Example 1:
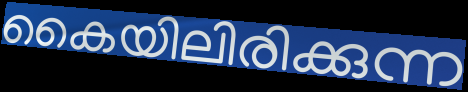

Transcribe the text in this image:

കൈയിലിരിക്കുന്ന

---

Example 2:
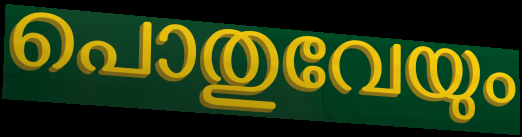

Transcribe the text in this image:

പൊതുവേയും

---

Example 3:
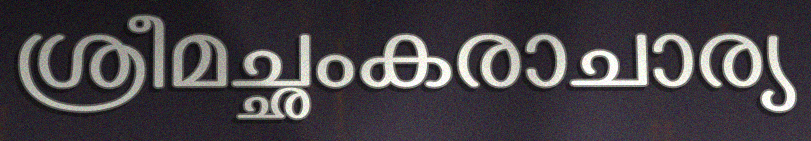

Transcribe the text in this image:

ശ്രീമച്ഛംകരാചാര്യ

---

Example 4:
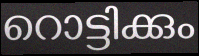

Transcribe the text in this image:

റൊട്ടിക്കും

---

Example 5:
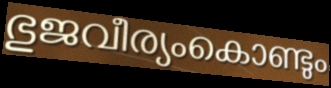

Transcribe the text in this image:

ഭുജവീര്യംകൊണ്ടും